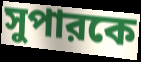
সুপারকে